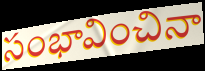
సంభావించినా